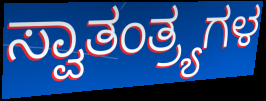
ಸ್ವಾತಂತ್ರ್ಯಗಳ